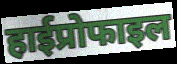
हाईप्रोफाइल